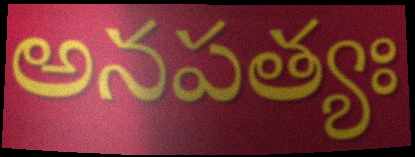
అనపత్యః